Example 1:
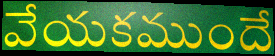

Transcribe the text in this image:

వేయకముందే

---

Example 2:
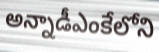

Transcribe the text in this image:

అన్నాడీఎంకేలోని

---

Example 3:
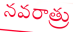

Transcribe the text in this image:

నవరాత్రు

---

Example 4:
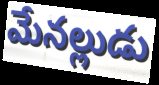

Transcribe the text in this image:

మేనల్లుడు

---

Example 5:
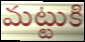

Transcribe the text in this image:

మట్టుకి